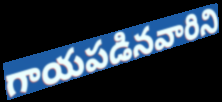
గాయపడినవారిని